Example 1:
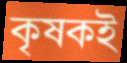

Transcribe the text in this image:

কৃষকই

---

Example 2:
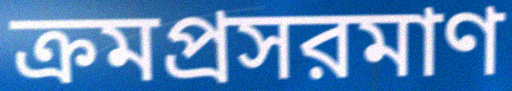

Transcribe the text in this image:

ক্রমপ্রসরমাণ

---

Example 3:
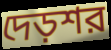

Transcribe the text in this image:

দেড়শর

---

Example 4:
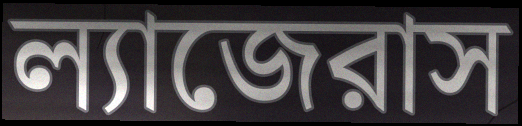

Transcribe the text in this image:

ল্যাজেরাস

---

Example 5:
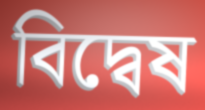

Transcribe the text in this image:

বিদ্বেষ